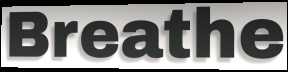
Breathe